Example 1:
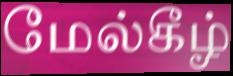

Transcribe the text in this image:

மேல்கீழ்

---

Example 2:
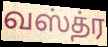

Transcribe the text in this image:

வஸ்த்ர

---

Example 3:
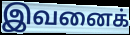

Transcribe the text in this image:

இவனைக்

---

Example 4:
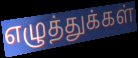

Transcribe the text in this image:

எழுத்துக்கள்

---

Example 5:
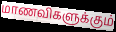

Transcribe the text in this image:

மாணவிகளுக்கும்